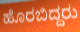
ಹೊರಬಿದ್ದರು